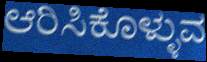
ಆರಿಸಿಕೊಳ್ಳುವ